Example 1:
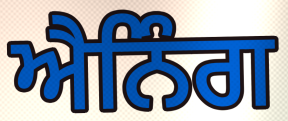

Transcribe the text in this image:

ਐਨਿੰਗ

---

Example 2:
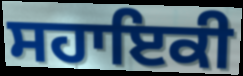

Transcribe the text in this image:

ਸਹਾਇਕੀ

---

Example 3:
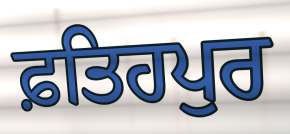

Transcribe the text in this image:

ਫ਼ਤਿਹਪੁਰ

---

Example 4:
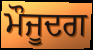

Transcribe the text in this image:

ਮੌਜੂਦਗ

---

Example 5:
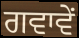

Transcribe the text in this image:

ਗਵਾਵੇਂ